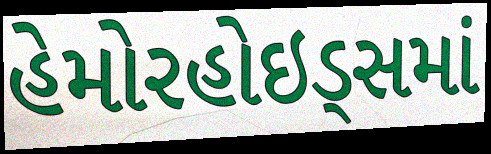
હેમોરહોઇડ્સમાં